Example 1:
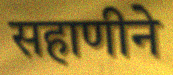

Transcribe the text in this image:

सहाणीने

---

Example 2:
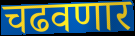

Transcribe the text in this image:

चढवणार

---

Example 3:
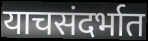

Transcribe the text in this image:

याचसंदर्भात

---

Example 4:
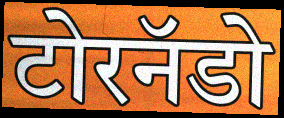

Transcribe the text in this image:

टोरनॅडो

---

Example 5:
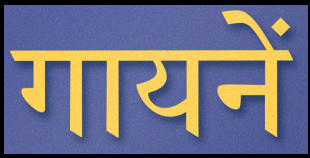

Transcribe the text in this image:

गायनें